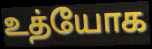
உத்யோக